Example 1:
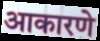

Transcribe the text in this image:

आकारणे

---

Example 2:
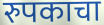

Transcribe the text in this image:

रुपकाचा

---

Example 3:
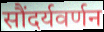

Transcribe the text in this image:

सौंदर्यवर्णन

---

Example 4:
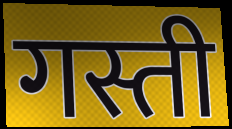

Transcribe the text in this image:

गस्ती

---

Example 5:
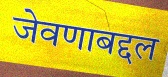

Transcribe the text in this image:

जेवणाबद्दल